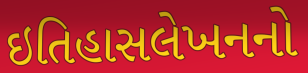
ઇતિહાસલેખનનો